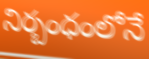
నిర్బంధంలోనే